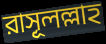
রাসূলল্লাহ